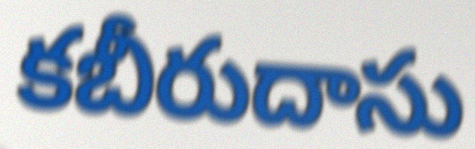
కబీరుదాసు